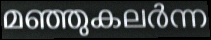
മഞ്ഞുകലർന്ന